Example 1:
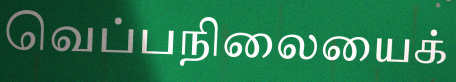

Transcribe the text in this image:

வெப்பநிலையைக்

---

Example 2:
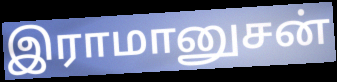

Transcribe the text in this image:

இராமானுசன்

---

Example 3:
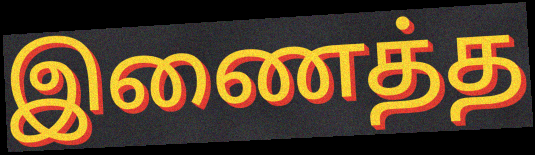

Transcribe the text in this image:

இணைத்த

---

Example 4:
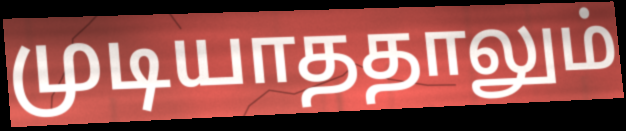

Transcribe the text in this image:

முடியாததாலும்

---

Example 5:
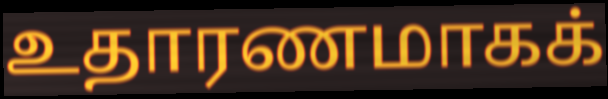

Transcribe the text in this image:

உதாரணமாகக்